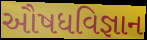
ઔષધવિજ્ઞાન